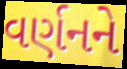
વર્ણનને